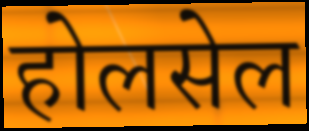
होलसेल